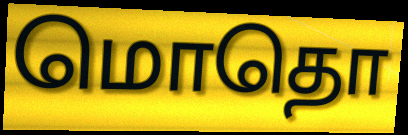
மொதொ